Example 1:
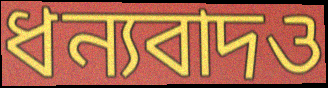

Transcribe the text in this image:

ধন্যবাদও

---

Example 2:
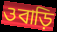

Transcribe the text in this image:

ওবাড়ি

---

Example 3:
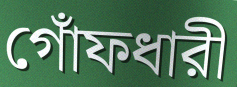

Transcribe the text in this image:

গোঁফধারী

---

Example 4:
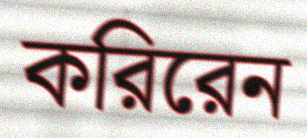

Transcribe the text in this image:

করিরেন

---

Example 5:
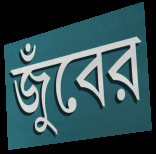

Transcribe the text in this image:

জুঁবের